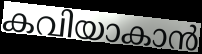
കവിയാകാൻ